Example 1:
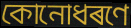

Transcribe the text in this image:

কোনোধৰণে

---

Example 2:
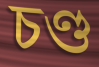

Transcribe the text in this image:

চণ্ড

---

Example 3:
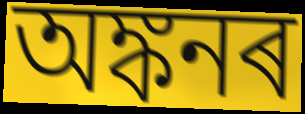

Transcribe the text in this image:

অঙ্কনৰ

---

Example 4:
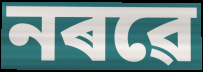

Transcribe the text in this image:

নৰৱে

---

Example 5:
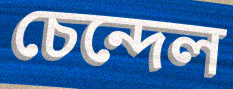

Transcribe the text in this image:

চেন্দেল